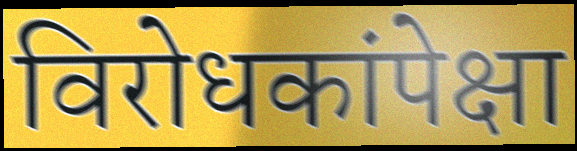
विरोधकांपेक्षा